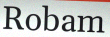
Robam